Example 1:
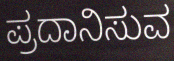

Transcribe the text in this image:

ಪ್ರದಾನಿಸುವ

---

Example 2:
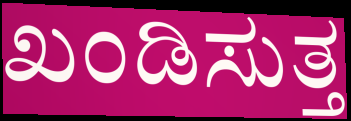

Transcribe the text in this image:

ಖಂಡಿಸುತ್ತ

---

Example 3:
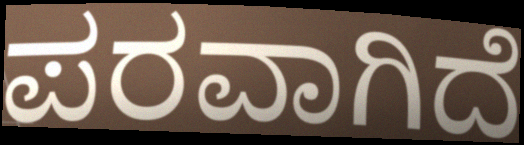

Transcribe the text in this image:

ಪರವಾಗಿದೆ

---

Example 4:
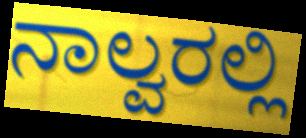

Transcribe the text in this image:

ನಾಲ್ವರಲ್ಲಿ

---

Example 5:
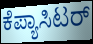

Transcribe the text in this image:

ಕೆಪ್ಯಾಸಿಟರ್